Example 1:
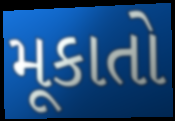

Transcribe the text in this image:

મૂકાતો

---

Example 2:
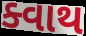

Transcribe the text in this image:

ક્વાથ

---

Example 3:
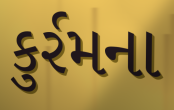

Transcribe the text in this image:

કુર્રમના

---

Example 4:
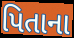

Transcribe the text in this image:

પિતાના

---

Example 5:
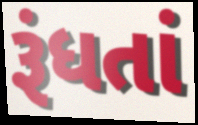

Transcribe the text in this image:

રૂંધતાં